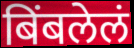
बिंबलेलं